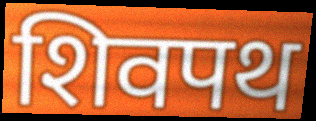
शिवपथ